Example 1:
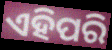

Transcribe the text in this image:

ଏହିପରି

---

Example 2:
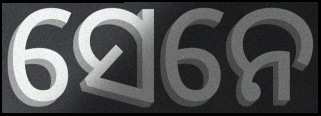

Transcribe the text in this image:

ସେନେ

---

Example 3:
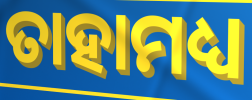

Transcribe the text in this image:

ତାହାମଧ୍ୟ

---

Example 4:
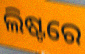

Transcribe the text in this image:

ଲିଷ୍ଟରେ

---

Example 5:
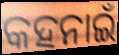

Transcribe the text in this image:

କହନାଇଁ